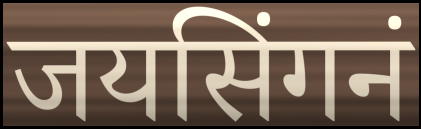
जयसिंगनं